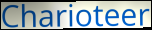
Charioteer